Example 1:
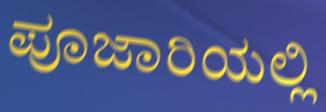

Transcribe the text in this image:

ಪೂಜಾರಿಯಲ್ಲಿ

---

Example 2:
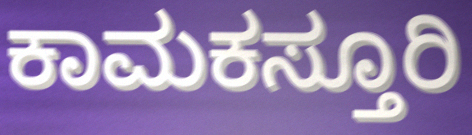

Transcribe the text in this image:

ಕಾಮಕಸ್ತೂರಿ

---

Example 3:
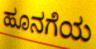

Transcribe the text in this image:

ಹೂನಗೆಯ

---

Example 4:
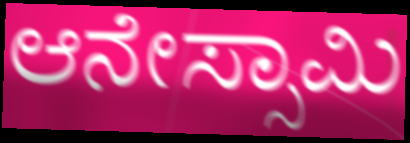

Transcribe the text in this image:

ಆನೇಸ್ಸಾಮಿ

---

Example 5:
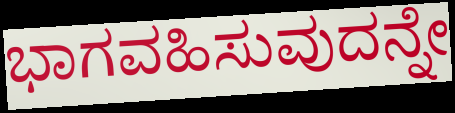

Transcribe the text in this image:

ಭಾಗವಹಿಸುವುದನ್ನೇ